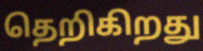
தெறிகிறது